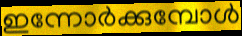
ഇന്നോർക്കുമ്പോൾ